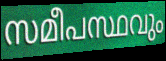
സമീപസ്ഥവും